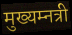
मुख्यम्नत्री